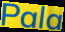
Pala